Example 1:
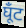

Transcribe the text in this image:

घूँट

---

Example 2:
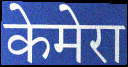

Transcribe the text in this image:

केमेरा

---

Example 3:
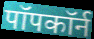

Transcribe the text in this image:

पॉपकॉर्न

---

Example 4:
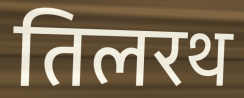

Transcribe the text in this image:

तिलरथ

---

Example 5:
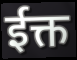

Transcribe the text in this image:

ईक्त